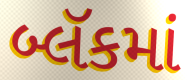
બ્લૅકમાં